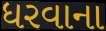
ધરવાના